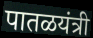
पातळयंत्री